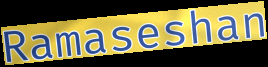
Ramaseshan